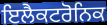
ਇਲੈਕਟਰੋਨਿਕ